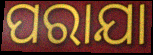
ପରାଯା